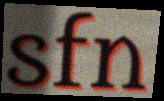
sfn